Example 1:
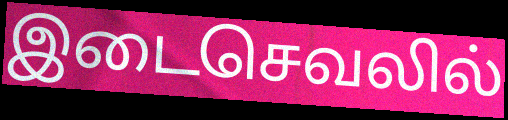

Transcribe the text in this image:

இடைசெவலில்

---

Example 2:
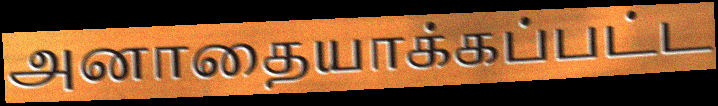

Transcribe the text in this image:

அனாதையாக்கப்பட்ட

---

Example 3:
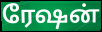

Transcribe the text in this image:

ரேஷன்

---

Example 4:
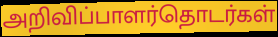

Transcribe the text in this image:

அறிவிப்பாளர்தொடர்கள்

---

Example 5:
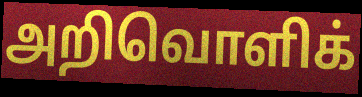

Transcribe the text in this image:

அறிவொளிக்